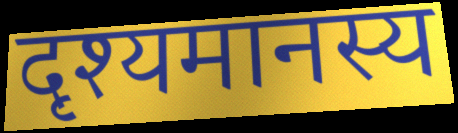
दृश्यमानस्य